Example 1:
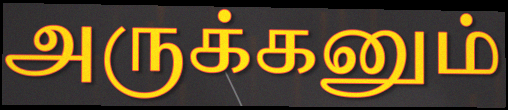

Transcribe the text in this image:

அருக்கனும்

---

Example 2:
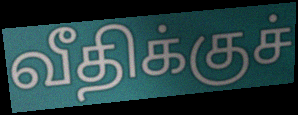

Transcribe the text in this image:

வீதிக்குச்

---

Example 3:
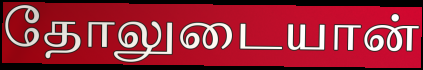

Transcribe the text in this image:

தோலுடையான்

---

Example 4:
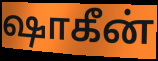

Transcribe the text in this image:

ஷாகீன்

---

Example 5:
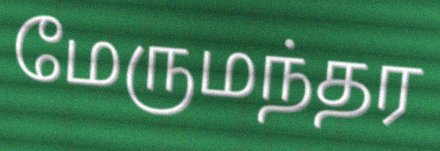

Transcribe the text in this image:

மேருமந்தர